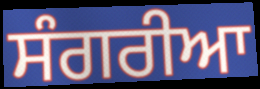
ਸੰਗਰੀਆ